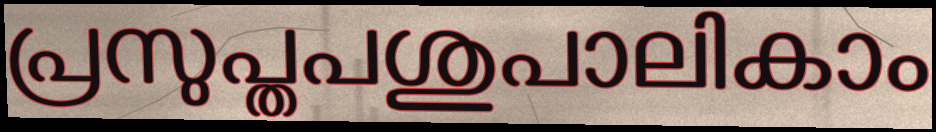
പ്രസുപ്തപശുപാലികാം